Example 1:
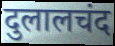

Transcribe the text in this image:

दुलालचंद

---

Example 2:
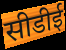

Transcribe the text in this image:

सीडीई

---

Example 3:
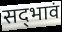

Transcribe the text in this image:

सद्भावं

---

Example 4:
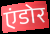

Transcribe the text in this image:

एंडोर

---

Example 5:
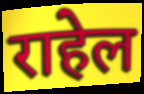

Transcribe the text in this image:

राहेल